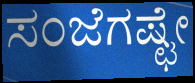
ಸಂಜೆಗಷ್ಟೇ